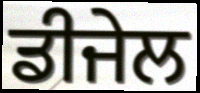
ਡੀਜੇਲ